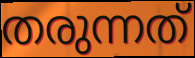
തരുന്നത്